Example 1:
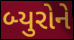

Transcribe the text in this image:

બ્યુરોને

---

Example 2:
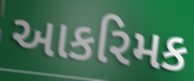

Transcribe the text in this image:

આકરિમક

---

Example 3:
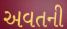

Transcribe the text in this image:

અવતની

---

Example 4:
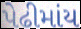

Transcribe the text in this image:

પેઢીમાંય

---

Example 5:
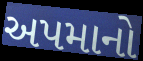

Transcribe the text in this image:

અપમાનો